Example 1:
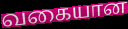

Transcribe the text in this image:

வகையான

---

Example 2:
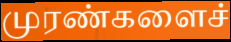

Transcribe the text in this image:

முரண்களைச்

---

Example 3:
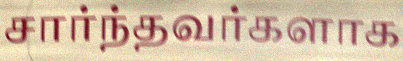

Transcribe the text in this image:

சார்ந்தவர்களாக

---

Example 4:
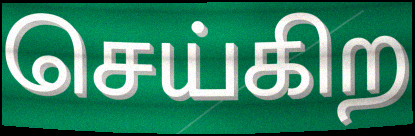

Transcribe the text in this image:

செய்கிற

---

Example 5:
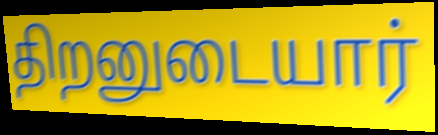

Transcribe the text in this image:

திறனுடையார்